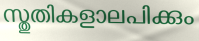
സ്തുതികളാലപിക്കും